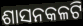
ଶାସନକଳଟି